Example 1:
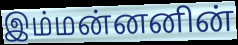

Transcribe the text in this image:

இம்மன்னனின்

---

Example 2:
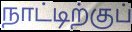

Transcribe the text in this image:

நாட்டிற்குப்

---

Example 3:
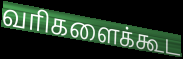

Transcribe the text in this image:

வரிகளைக்கூட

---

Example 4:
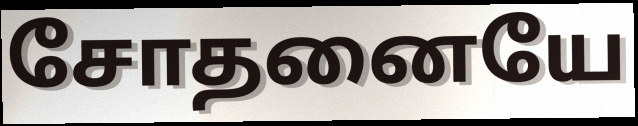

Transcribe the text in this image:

சோதனையே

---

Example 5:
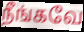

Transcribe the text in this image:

நீங்கவே